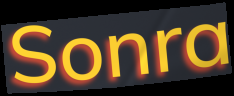
Sonra